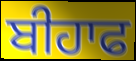
ਬੀਹਾਫ